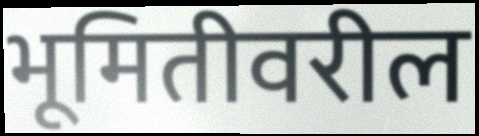
भूमितीवरील